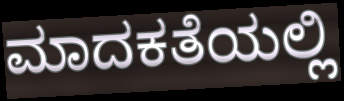
ಮಾದಕತೆಯಲ್ಲಿ